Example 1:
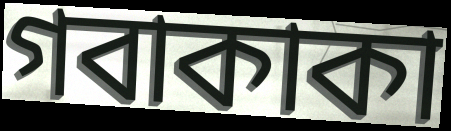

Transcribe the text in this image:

গবাকাকা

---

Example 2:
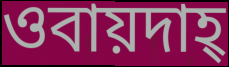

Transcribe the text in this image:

ওবায়দাহ্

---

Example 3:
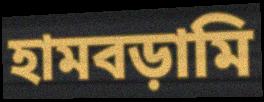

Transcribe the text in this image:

হামবড়ামি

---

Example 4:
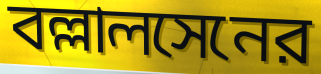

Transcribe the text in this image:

বল্লালসেনের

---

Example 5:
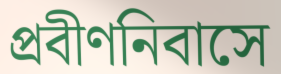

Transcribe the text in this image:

প্রবীণনিবাসে